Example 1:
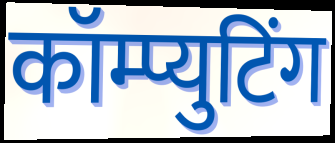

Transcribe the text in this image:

कॉम्प्युटिंग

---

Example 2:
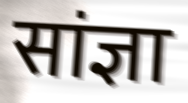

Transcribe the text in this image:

सांज्ञा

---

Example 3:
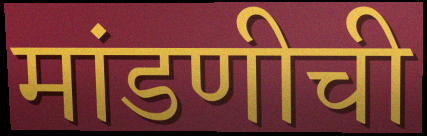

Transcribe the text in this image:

मांडणीची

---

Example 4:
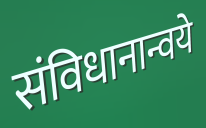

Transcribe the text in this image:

संविधानान्वये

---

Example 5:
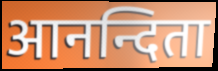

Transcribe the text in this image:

आनन्दिता